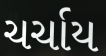
ચર્ચાય